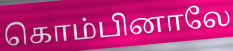
கொம்பினாலே